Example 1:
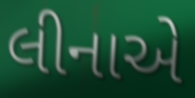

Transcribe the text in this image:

લીનાએ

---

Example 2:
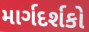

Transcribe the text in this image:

માર્ગદર્શકો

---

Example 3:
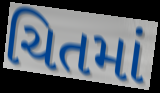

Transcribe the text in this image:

ચિતમાં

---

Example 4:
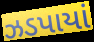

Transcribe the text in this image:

ઝડપાયાં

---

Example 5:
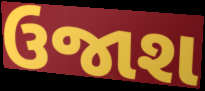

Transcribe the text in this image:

ઉજાશ